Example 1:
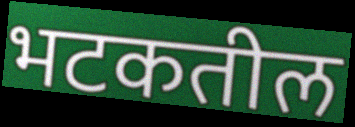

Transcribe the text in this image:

भटकतील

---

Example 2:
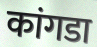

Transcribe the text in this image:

कांगडा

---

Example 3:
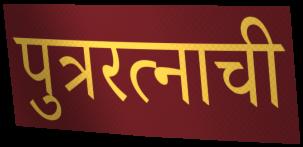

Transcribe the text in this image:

पुत्ररत्नाची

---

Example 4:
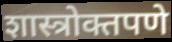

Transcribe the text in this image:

शास्त्रोक्तपणे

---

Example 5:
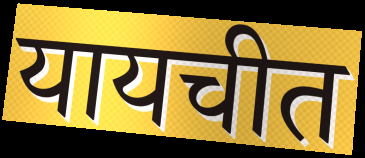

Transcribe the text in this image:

यायचीत